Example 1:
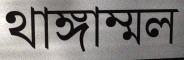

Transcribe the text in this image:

থাঙ্গাম্মল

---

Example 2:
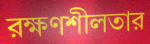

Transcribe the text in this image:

রক্ষণশীলতার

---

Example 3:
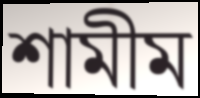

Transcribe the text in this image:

শামীম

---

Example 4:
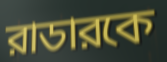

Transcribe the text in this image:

রাডারকে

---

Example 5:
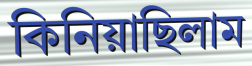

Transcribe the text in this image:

কিনিয়াছিলাম